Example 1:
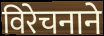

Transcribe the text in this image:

विरेचनाने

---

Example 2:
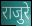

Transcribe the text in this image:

राजुरे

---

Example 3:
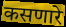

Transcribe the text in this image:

कसणारे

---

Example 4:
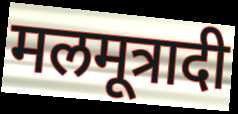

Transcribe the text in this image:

मलमूत्रादी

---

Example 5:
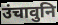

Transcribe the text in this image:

उंचावुनि